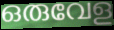
ഒരുവേള